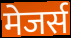
मेजर्स